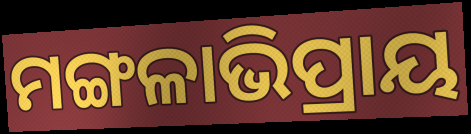
ମଙ୍ଗଳାଭିପ୍ରାୟ